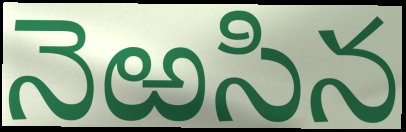
నెఱసిన